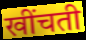
खींचती